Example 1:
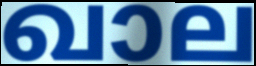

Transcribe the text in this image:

ഖാല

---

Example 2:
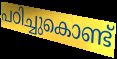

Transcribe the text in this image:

പഠിച്ചുകൊണ്ട്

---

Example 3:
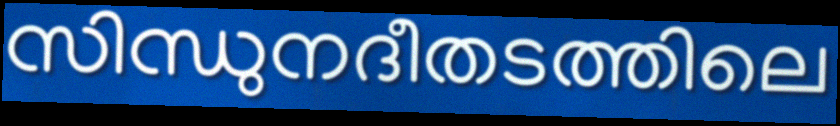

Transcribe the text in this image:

സിന്ധുനദീതടത്തിലെ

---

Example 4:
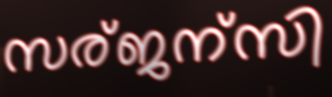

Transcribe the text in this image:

സര്ജന്സി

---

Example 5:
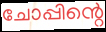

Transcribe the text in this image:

ചോപ്പിന്റെ